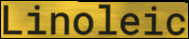
Linoleic